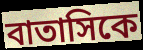
বাতাসিকে